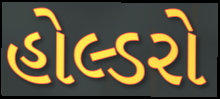
હોલ્ડરો